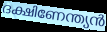
ദക്ഷിണേന്ത്യൻ